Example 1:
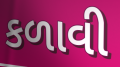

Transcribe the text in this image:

કળાવી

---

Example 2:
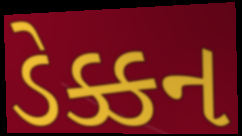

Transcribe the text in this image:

ડેક્કન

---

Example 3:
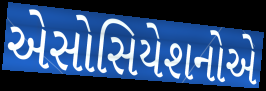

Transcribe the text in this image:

એસોસિયેશનોએ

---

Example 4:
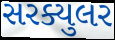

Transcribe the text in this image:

સરક્યુલર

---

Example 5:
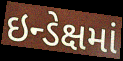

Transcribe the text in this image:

ઇન્ડેક્ષમાં